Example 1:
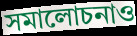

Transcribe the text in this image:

সমালোচনাও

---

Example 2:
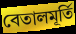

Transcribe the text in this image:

বেতালমূর্তি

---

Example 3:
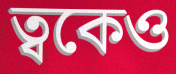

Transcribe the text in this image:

ত্বকেও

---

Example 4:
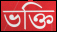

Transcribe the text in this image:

ভক্তি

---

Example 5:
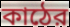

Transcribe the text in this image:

কাঠের